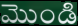
మొండి